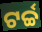
ଟର୍ଚ୍ଚ